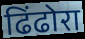
ढिंढोरा